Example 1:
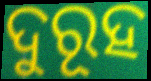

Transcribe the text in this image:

ଦୁରୂହ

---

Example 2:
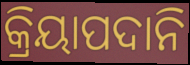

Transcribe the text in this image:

କ୍ରିୟାପଦାନି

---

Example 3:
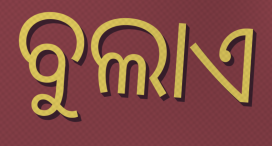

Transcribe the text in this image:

ବୁଲାଏ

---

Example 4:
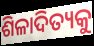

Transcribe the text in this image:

ଶିଳାଦିତ୍ୟକୁ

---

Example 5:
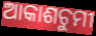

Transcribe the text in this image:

ଆକାଶଚୁମୀ